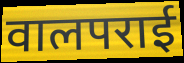
वालपराई